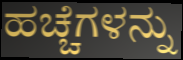
ಹಚ್ಚೆಗಳನ್ನು